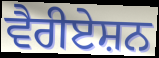
ਵੈਰੀਏਸ਼ਨ